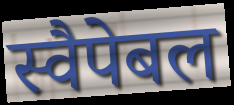
स्वैपेबल